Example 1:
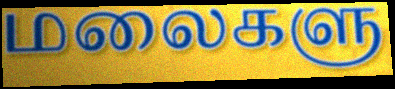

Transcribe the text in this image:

மலைகளு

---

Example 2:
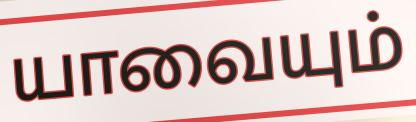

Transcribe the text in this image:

யாவையும்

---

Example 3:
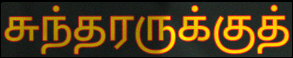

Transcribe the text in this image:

சுந்தரருக்குத்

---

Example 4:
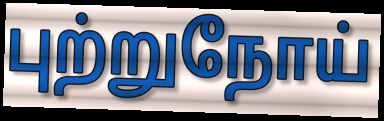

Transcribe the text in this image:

புற்றுநோய்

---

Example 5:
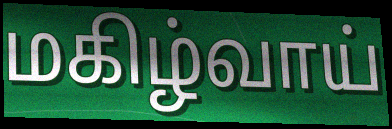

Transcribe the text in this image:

மகிழ்வாய்